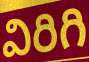
విరిగి